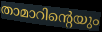
താമാറിന്റെയും